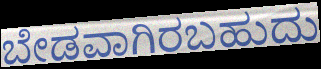
ಬೇಡವಾಗಿರಬಹುದು